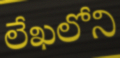
లేఖలోని